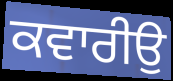
ਕਵਾਰੀਉ